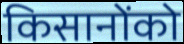
किसानोंको